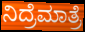
ನಿದ್ರೆಮಾತ್ರೆ